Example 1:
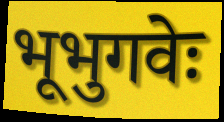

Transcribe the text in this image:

भूभुगवेः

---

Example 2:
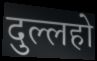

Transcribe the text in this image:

दुल्लहो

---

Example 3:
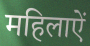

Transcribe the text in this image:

महिलाऐं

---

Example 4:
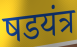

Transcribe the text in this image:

षडयंत्र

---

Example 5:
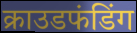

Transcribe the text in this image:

क्राउडफंडिंग